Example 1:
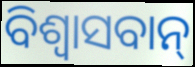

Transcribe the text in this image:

ବିଶ୍ଵାସବାନ୍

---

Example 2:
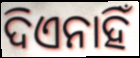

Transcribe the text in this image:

ଦିଏନାହିଁ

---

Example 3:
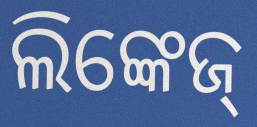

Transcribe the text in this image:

ଲିଙ୍କେଜ୍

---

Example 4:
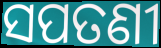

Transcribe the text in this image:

ସପତଣୀ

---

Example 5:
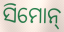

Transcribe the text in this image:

ସିମୋନ୍